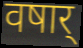
वषार्